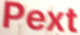
Pext